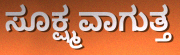
ಸೂಕ್ಷ್ಮವಾಗುತ್ತ